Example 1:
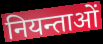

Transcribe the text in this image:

नियन्ताओं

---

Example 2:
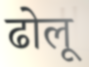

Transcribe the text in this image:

ढोलू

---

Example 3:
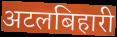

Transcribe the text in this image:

अटलबिहारी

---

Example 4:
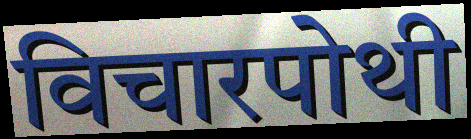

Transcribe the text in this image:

विचारपोथी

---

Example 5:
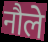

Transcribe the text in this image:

नौले